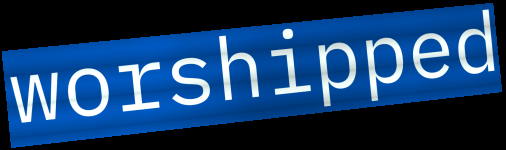
worshipped